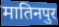
मातिनपुर